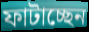
ফাটাচ্ছেন